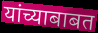
यांच्याबाबत